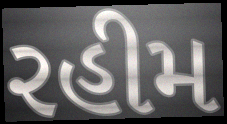
રહીમ